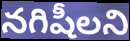
నగిషీలని